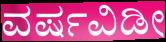
ವರ್ಷವಿಡೀ